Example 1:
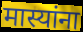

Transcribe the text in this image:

मास्यांना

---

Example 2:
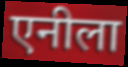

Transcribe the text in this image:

एनीला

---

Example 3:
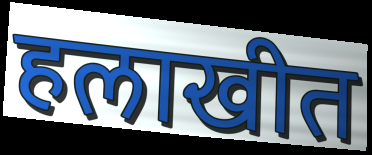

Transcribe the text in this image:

हलाखीत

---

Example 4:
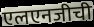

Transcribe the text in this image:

एलएनजीची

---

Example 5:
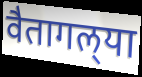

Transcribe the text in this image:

वैतागल्या